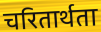
चरितार्थता